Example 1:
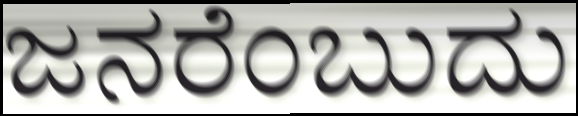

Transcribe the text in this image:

ಜನರೆಂಬುದು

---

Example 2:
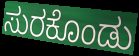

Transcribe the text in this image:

ಸುರಕೊಂಡು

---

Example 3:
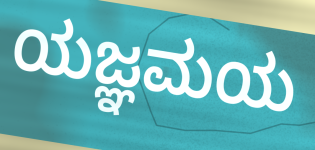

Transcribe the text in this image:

ಯಜ್ಞಮಯ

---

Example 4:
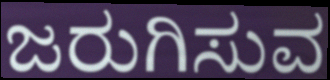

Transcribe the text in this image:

ಜರುಗಿಸುವ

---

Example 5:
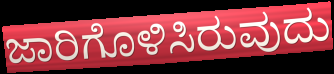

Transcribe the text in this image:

ಜಾರಿಗೊಳಿಸಿರುವುದು